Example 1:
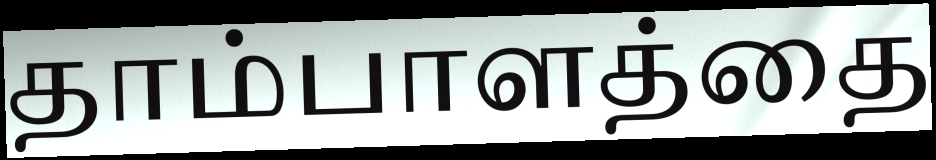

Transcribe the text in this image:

தாம்பாளத்தை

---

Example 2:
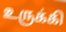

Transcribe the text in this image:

உருக்கி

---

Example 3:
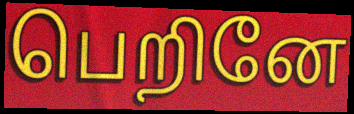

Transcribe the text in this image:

பெறினே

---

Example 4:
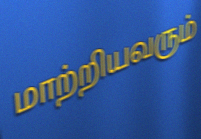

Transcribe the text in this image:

மாற்றியவரும்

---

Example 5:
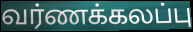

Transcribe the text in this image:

வர்ணக்கலப்பு